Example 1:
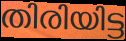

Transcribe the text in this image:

തിരിയിട്ട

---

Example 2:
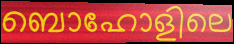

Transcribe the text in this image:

ബൊഹോളിലെ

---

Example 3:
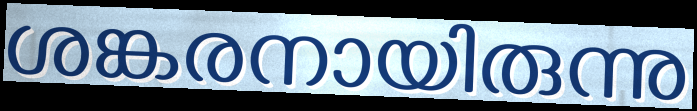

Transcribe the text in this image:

ശങ്കരനായിരുന്നു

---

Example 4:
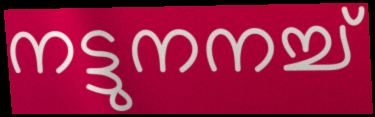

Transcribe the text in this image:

നട്ടുനനച്ച്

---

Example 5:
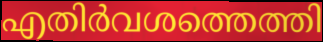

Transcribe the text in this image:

എതിർവശത്തെത്തി